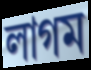
লাগম